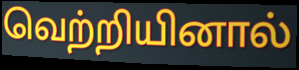
வெற்றியினால்